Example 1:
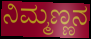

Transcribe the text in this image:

ನಿಮ್ಮಣ್ಣನ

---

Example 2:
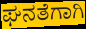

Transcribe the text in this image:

ಘನತೆಗಾಗಿ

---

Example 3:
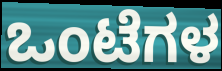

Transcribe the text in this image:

ಒಂಟೆಗಳ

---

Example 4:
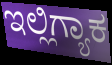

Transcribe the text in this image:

ಇಲ್ಲಿಗ್ಯಾಕ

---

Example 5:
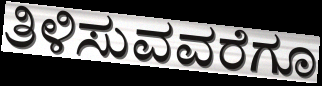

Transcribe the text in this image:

ತಿಳಿಸುವವರೆಗೂ